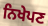
ਨਿਖੇਪਣ